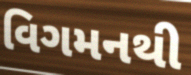
વિગમનથી